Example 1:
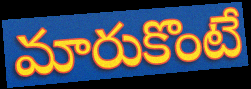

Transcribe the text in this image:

మారుకొంటే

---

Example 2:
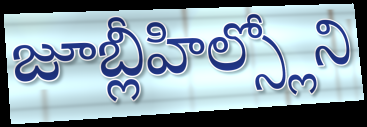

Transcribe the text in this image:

జూబ్లీహిల్స్లోని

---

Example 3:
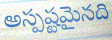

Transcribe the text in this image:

అస్పష్టమైనది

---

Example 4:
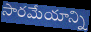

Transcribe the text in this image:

సారమేయాన్ని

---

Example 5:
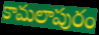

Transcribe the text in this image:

కామలాపురం